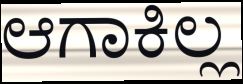
ಆಗಾಕಿಲ್ಲ